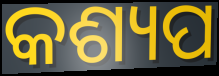
କଶ୍ୟପ